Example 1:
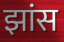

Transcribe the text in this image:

झांस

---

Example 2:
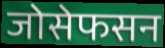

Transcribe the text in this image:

जोसेफसन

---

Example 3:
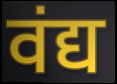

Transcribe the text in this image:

वंद्य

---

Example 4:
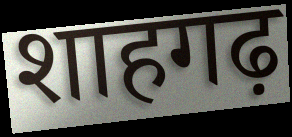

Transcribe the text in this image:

शाहगढ़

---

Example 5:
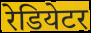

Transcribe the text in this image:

रेडियेटर